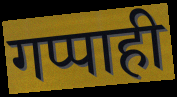
गप्पाही